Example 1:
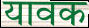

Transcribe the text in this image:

यावक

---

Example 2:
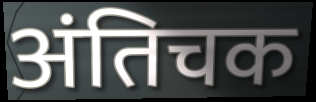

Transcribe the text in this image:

अंतिचक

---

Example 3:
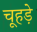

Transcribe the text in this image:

चूहड़े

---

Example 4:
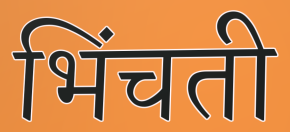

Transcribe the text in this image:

भिंचती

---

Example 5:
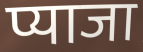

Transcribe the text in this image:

प्याजा